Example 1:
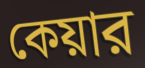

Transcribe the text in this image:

কেয়ার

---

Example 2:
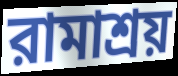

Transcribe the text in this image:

রামাশ্রয়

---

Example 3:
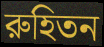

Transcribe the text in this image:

রুহিতন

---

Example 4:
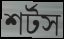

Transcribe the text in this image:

শর্টস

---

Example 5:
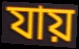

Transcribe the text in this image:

যায়